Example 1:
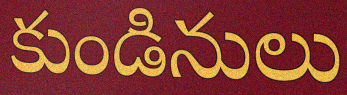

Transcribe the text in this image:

కుండినులు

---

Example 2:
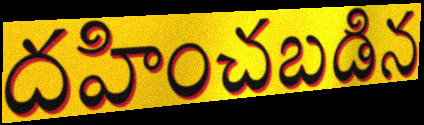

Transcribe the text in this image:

దహించబడిన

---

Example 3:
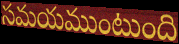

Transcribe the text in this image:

సమయముంటుంది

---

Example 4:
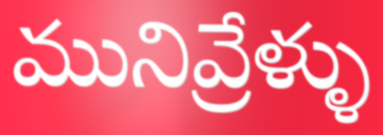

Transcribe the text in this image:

మునివ్రేళ్ళు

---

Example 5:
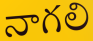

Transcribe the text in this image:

నాగలి